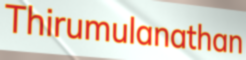
Thirumulanathan